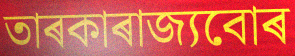
তাৰকাৰাজ্যবোৰ